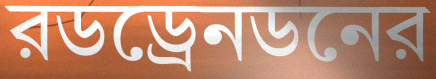
রডড্রেনডনের